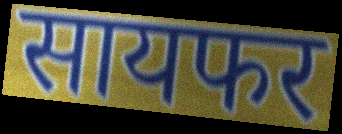
सायफर